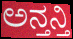
ಅನ್ತನ್ತಿ